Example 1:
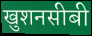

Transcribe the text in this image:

खुशनसीबी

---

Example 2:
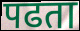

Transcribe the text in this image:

पढता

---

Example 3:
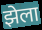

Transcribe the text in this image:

झेला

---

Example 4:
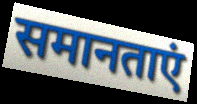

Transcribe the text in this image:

समानताएं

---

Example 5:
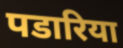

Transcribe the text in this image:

पडारिया